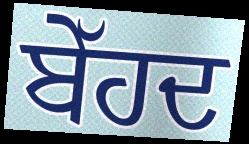
ਬੇੱਹਦ